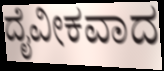
ದೈವೀಕವಾದ